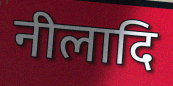
नीलादि